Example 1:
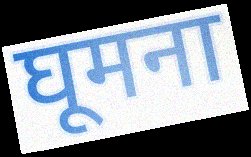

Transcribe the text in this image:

घूमना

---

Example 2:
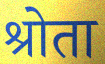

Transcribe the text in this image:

श्रोता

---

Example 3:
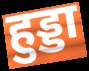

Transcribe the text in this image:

हुड्डा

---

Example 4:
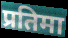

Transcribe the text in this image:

प्रतिमा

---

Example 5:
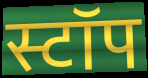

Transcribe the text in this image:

स्टॉप